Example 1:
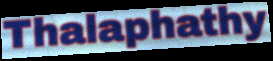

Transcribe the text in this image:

Thalaphathy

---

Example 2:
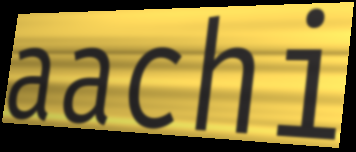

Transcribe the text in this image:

aachi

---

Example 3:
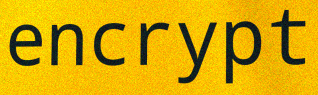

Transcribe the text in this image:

encrypt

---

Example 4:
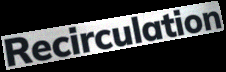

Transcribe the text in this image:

Recirculation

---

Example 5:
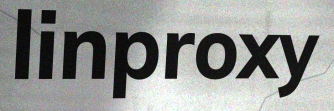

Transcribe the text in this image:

linproxy